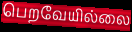
பெறவேயில்லை